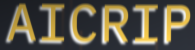
AICRIP